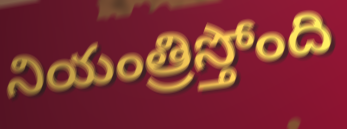
నియంత్రిస్తోంది